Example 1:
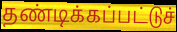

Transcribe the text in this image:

தண்டிக்கப்பட்டுச்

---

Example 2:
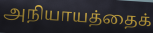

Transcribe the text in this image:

அநியாயத்தைக்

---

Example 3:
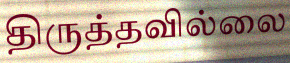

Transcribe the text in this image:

திருத்தவில்லை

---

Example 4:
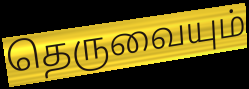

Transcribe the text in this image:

தெருவையும்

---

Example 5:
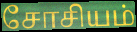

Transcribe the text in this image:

சோசியம்